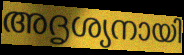
അദൃശ്യനായി